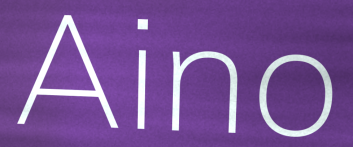
Aino